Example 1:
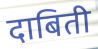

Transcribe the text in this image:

दाबिती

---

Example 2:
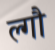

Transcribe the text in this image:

ल्गौ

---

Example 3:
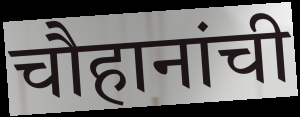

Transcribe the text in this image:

चौहानांची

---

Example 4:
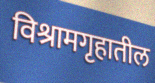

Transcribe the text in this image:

विश्रामगृहातील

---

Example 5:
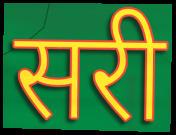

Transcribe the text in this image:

सरी